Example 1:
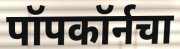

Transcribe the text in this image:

पॉपकॉर्नचा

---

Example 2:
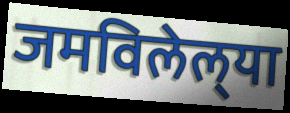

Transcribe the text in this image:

जमविलेल्या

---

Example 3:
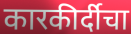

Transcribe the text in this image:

कारकीर्दीचा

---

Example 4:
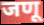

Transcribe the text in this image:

जणू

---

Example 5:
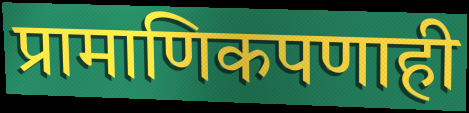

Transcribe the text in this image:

प्रामाणिकपणाही